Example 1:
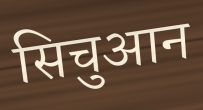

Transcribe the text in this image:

सिचुआन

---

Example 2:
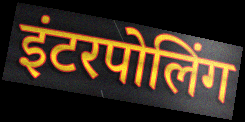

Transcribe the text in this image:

इंटरपोलिंग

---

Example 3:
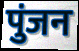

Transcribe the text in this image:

पुंजन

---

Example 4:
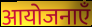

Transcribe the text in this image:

आयोजनाएँ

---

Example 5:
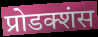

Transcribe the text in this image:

प्रोडक्शंस